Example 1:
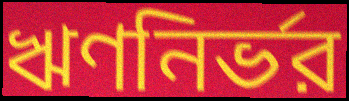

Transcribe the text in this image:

ঋণনির্ভর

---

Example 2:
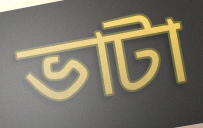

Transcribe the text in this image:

ভাটা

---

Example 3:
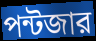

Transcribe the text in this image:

পন্টজার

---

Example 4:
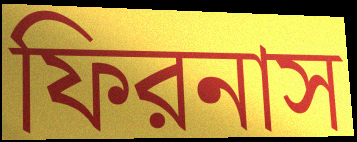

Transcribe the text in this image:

ফিরনাস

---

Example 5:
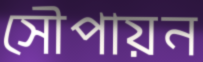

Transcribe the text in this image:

সৌপায়ন